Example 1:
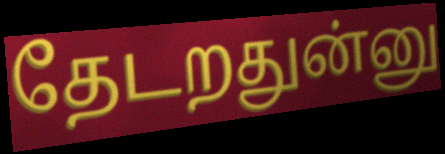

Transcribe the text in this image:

தேடறதுன்னு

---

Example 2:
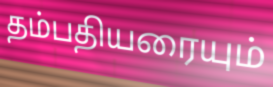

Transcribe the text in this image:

தம்பதியரையும்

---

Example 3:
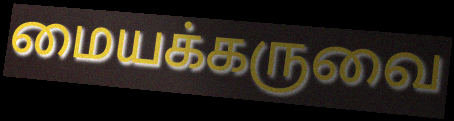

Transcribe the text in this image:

மையக்கருவை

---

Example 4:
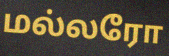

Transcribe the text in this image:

மல்லரோ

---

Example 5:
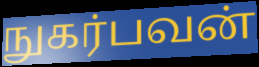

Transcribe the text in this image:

நுகர்பவன்